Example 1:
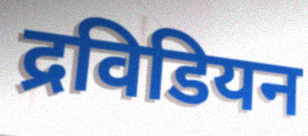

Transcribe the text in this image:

द्रविडियन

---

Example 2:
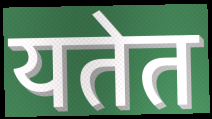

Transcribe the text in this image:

यतेत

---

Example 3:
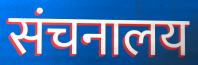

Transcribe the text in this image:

संचनालय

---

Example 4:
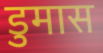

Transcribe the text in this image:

डुमास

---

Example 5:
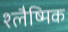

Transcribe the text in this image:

श्लैष्मिक